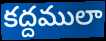
కద్దములా